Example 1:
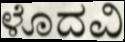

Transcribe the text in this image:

ಳೊದವಿ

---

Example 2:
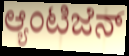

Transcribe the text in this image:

ಆ್ಯಂಟಿಜೆನ್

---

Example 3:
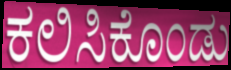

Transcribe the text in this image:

ಕಲಿಸಿಕೊಂಡು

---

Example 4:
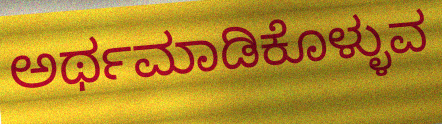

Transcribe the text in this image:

ಅರ್ಥಮಾಡಿಕೊಳ್ಳುವ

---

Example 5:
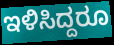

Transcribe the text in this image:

ಇಳಿಸಿದ್ದರೂ